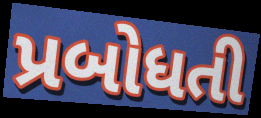
પ્રબોધતી